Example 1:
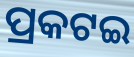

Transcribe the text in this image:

ପ୍ରକଟଇ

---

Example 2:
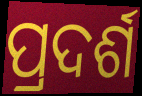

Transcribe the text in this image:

ପ୍ରଦର୍ଶ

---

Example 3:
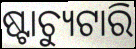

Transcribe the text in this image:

ଷ୍ଟାଚ୍ୟୁଟାରି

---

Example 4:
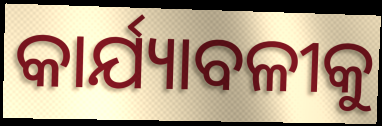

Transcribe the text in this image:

କାର୍ଯ୍ୟାବଳୀକୁ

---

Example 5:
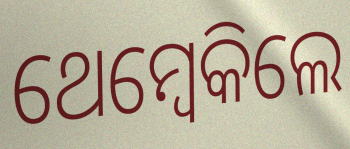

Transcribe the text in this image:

ଥେମ୍ବେକିଲେ